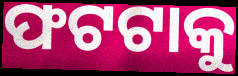
ଫଟଟାକୁ